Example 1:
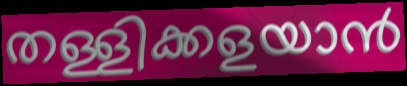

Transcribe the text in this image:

തള്ളിക്കളയാൻ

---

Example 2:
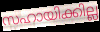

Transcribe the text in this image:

സഹായിക്കില്ല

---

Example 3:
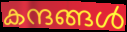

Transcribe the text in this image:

കന്ദങ്ങൾ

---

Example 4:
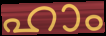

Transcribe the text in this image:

ഹാം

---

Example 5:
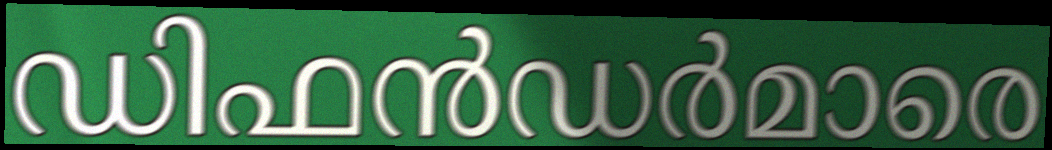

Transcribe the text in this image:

ഡിഫൻഡർമാരെ